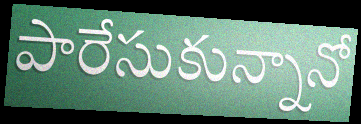
పారేసుకున్నానో